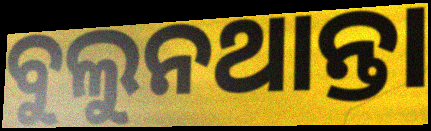
ବୁଲୁନଥାନ୍ତା